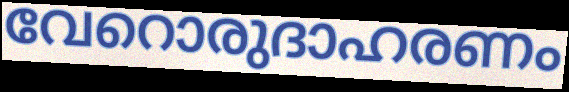
വേറൊരുദാഹരണം